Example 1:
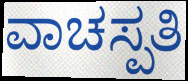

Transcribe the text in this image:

ವಾಚಸ್ಪತಿ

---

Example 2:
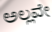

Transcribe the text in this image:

ಅಲ್ಲವೇ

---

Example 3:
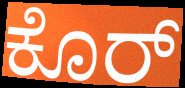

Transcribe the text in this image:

ಕೊರ್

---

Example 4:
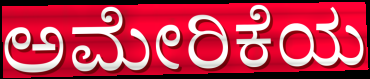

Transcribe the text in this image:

ಅಮೇರಿಕೆಯ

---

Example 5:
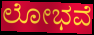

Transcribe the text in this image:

ಲೋಭವೆ